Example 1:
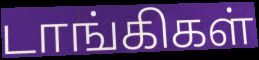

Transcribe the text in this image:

டாங்கிகள்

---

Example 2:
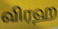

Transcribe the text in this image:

விரஹ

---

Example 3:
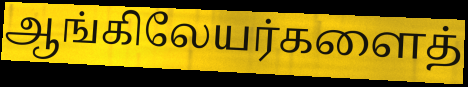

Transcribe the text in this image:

ஆங்கிலேயர்களைத்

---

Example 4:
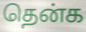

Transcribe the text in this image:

தென்க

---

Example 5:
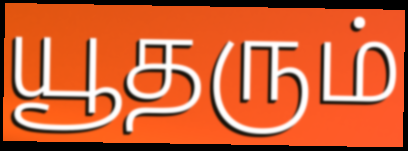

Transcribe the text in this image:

யூதரும்